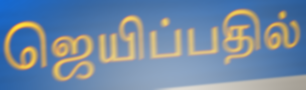
ஜெயிப்பதில்